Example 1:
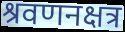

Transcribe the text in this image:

श्रवणनक्षत्र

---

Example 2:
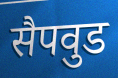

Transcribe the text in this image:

सैपवुड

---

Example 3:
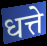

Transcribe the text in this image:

धत्ते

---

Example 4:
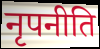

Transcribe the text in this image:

नृपनीति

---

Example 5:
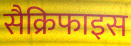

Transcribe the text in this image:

सैक्रिफाइस